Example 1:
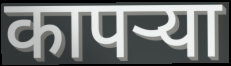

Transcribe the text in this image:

कापर्‍या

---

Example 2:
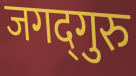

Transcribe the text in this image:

जगद्‍गुरु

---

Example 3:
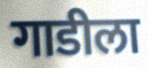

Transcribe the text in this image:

गाडीला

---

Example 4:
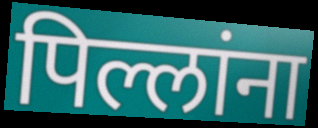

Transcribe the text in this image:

पिल्लांना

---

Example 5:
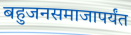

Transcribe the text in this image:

बहुजनसमाजापर्यंत